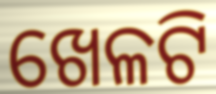
ଖେଳଟି